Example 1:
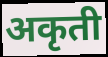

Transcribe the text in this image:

अकृती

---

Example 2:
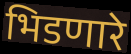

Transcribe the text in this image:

भिडणारे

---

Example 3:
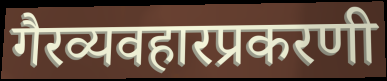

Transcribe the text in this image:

गैरव्यवहारप्रकरणी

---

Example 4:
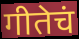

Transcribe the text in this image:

गीतेचं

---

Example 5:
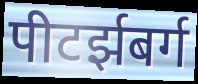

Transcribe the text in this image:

पीटर्झबर्ग